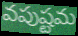
వపుష్టమ